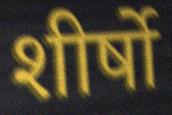
शीर्षो